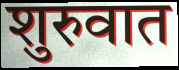
शुरुवात